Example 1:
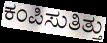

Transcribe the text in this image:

ಕಂಪಿಸುತಿತ್ತು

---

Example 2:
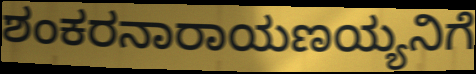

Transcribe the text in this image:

ಶಂಕರನಾರಾಯಣಯ್ಯನಿಗೆ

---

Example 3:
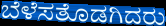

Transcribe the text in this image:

ಬೆಳೆಸತೊಡಗಿದರು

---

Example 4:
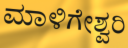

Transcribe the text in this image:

ಮಾಳಿಗೇಶ್ವರಿ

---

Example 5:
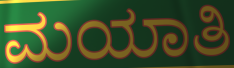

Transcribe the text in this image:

ಮಯಾತಿ